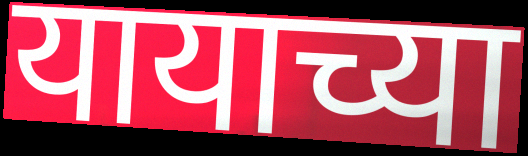
यायाच्या